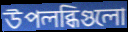
উপলব্ধিগুলো